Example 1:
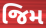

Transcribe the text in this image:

જિમ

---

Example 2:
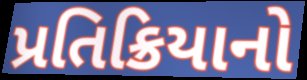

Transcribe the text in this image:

પ્રતિક્રિયાનો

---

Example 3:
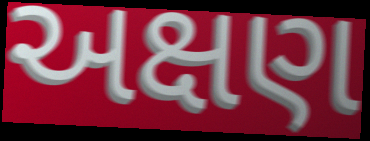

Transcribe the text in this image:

અક્ષણ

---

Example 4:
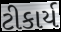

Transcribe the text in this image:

ટીકાર્ય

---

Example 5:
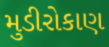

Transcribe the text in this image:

મુડીરોકાણ